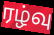
ரழ்வு